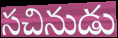
సచినుడు